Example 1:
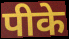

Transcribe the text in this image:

पीके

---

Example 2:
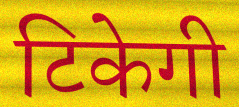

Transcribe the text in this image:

टिकेगी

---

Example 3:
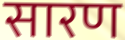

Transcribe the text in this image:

सारण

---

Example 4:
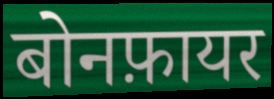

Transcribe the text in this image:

बोनफ़ायर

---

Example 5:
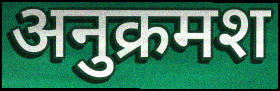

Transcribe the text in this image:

अनुक्रमश